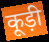
कूड़ी